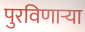
पुरविणार्‍या